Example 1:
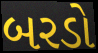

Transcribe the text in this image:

બરડો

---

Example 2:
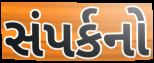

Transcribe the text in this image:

સંપર્કનો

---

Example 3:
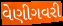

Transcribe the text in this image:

વેણીગવરી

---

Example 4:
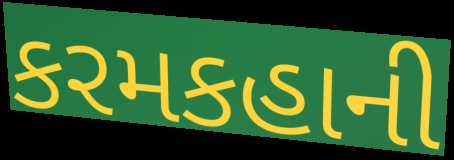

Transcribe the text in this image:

કરમકહાની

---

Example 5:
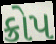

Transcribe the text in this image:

ક્રોપ